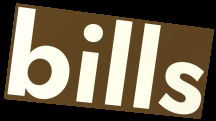
bills